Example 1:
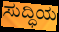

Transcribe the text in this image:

ಸುದ್ಧಿಯ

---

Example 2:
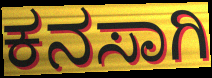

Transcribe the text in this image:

ಕನಸಾಗಿ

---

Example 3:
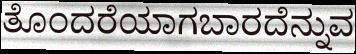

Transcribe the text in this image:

ತೊಂದರೆಯಾಗಬಾರದೆನ್ನುವ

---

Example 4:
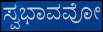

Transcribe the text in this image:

ಸ್ವಭಾವವೋ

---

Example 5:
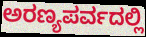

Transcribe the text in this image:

ಅರಣ್ಯಪರ್ವದಲ್ಲಿ